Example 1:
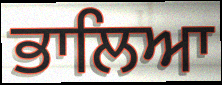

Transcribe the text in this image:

ਭਾਲਿਆ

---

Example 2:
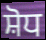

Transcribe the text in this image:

ਸ਼ੋਧ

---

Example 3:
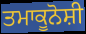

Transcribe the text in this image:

ਤਮਾਕੂਨੋਸ਼ੀ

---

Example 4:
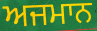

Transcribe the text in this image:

ਅਜਮਾਨ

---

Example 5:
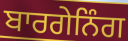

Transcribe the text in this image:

ਬਾਰਗੇਨਿੰਗ